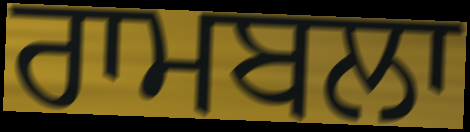
ਰਾਮਬਲਾ